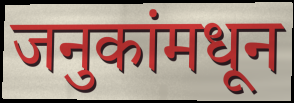
जनुकांमधून